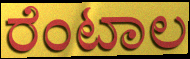
ರೆಂಟಾಲ